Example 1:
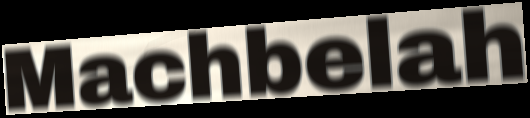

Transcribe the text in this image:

Machbelah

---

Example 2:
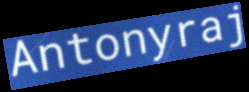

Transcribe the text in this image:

Antonyraj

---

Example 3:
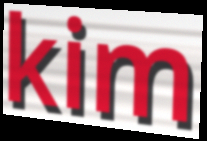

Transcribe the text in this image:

kim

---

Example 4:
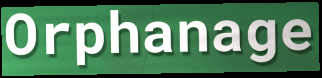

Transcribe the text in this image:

Orphanage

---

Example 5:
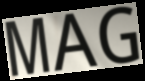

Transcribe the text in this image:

MAG